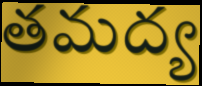
తమద్య